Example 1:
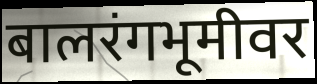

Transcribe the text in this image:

बालरंगभूमीवर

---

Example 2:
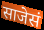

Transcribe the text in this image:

साजेसं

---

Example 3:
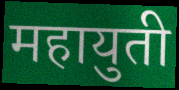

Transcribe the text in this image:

महायुती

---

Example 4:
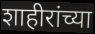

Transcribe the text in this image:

शाहीरांच्या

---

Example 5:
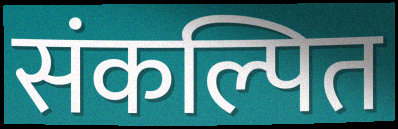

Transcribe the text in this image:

संकल्पित